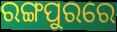
ରଙ୍ଗପୁରରେ